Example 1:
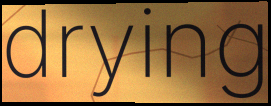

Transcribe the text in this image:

drying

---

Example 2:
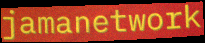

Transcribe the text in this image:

jamanetwork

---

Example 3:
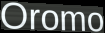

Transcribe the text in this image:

Oromo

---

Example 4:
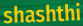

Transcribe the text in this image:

shashthi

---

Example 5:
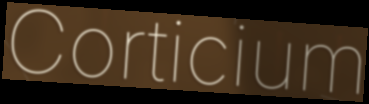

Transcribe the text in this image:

Corticium